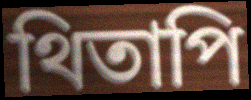
থিতাপি